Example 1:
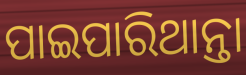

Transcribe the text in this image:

ପାଇପାରିଥାନ୍ତା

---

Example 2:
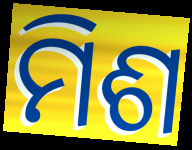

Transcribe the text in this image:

ମିଶ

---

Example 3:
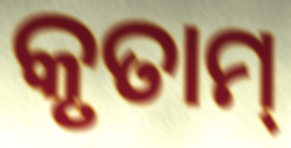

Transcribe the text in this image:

କୃତାମ୍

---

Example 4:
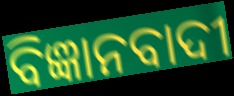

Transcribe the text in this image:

ବିଜ୍ଞାନବାଦୀ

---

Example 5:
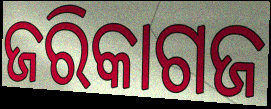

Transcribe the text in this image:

ଜରିକାଗଜ